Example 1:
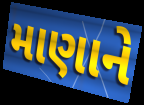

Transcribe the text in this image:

માણાને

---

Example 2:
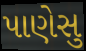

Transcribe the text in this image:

પાણેસુ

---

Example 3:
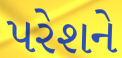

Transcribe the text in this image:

પરેશને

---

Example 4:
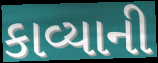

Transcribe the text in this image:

કાવ્યાની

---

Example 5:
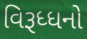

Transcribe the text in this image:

વિરૂધ્ધનો